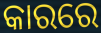
କାରରେ